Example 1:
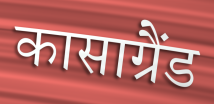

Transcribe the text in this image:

कासाग्रैंड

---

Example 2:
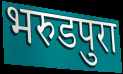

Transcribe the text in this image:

भरुडपुरा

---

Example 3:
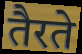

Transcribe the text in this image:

तैरते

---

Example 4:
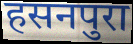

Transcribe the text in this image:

हसनपुरा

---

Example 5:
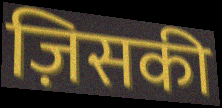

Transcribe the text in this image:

ज़िसकी